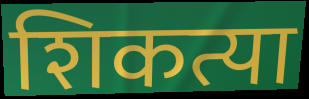
शिकत्या